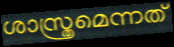
ശാസ്ത്രമെന്നത്